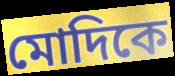
মোদিকে